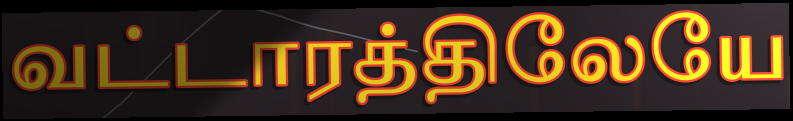
வட்டாரத்திலேயே